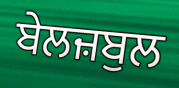
ਬੇਲਜ਼ਬੁਲ